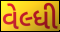
વેલ્ધી